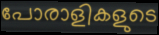
പോരാളികളുടെ